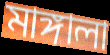
মাঙ্গালা